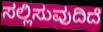
ಸಲ್ಲಿಸುವುದಿದೆ